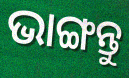
ଭାଙ୍ଗନ୍ତୁ